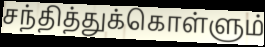
சந்தித்துக்கொள்ளும்